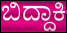
ಬಿದ್ದಾಕಿ